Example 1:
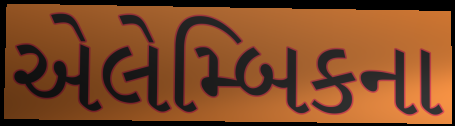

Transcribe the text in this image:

એલેમ્બિકના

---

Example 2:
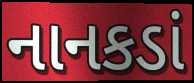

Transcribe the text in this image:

નાનકડાં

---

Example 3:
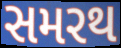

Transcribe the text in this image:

સમરથ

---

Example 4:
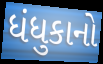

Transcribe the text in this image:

ધંધુકાનો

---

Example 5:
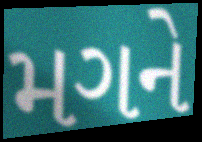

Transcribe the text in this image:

મગને